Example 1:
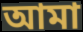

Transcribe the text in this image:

আমা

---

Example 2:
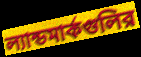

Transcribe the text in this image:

ল্যান্ডমার্কগুলির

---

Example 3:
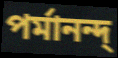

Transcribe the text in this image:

পর্মানন্দ্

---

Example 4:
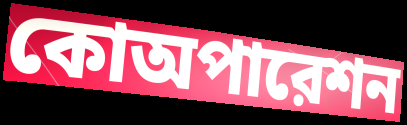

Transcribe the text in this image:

কোঅপারেশন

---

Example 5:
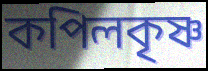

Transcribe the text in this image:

কপিলকৃষ্ণ